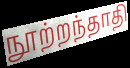
நூற்றந்தாதி